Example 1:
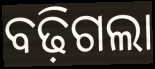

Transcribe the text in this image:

ବଢ଼ିଗଲା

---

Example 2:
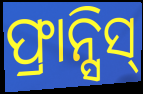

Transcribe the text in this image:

ଫ୍ରାନ୍ସିସ୍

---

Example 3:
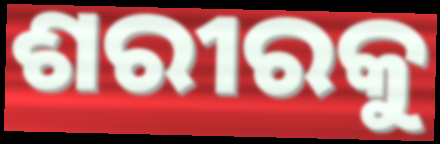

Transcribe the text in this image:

ଶରୀରକୁ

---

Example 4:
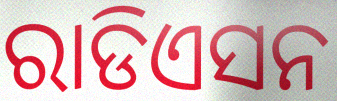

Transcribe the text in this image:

ରାଡିଏସନ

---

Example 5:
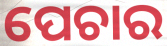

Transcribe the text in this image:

ପେଚାର